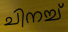
ചിനച്ച്